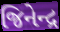
જિનેન્દ્ર